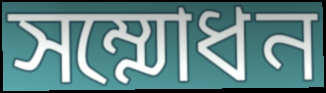
সম্মোধন